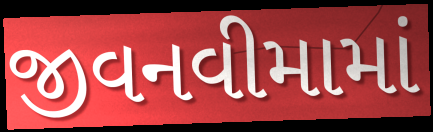
જીવનવીમામાં